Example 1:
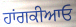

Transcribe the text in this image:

ਹਾਂਗਕੀਆਓ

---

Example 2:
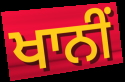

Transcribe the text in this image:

ਖਾਨੀਂ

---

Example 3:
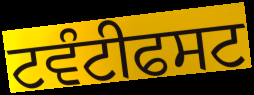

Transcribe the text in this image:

ਟਵੰਟੀਫਸਟ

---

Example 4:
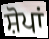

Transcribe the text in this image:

ਸ਼ੋਪਾਂ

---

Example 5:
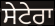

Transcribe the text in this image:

ਸੇਟੇਰਾ